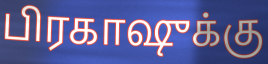
பிரகாஷுக்கு